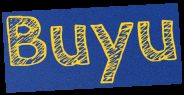
Buyu